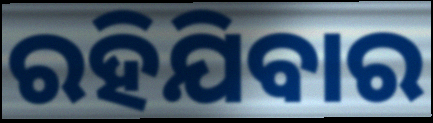
ରହିଯିବାର